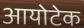
आयोटेक